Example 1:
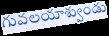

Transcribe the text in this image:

గువలయాశ్వుండు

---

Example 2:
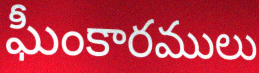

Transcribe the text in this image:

ఘీంకారములు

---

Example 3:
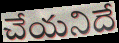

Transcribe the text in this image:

చేయనిదే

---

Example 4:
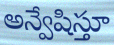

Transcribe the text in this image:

అన్వేషిస్తూ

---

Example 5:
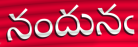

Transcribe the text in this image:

నందునఁ